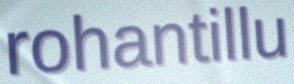
rohantillu